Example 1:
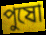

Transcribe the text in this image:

পুষো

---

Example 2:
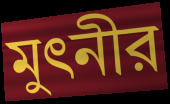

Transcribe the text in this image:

মুৎনীর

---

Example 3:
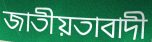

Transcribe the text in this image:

জাতীয়তাবাদী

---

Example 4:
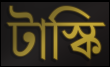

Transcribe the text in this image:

টাস্কি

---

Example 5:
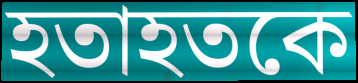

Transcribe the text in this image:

হতাহতকে